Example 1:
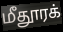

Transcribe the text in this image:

மீதூரக்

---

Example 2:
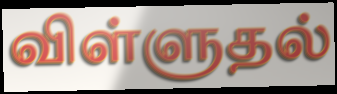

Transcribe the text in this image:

விள்ளுதல்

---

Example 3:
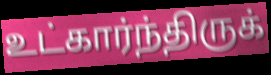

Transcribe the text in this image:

உட்கார்ந்திருக்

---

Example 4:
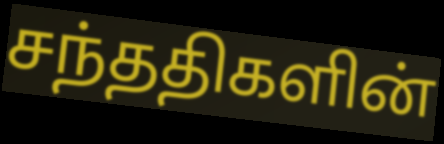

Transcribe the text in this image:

சந்ததிகளின்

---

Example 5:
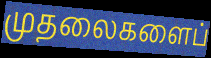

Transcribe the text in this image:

முதலைகளைப்